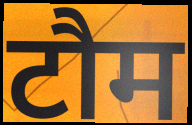
टौम